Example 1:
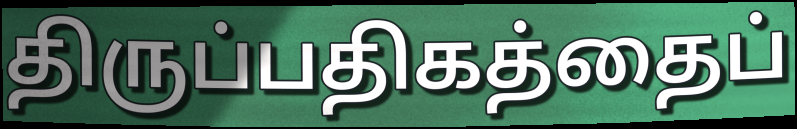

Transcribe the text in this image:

திருப்பதிகத்தைப்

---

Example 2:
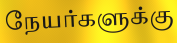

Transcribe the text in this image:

நேயர்களுக்கு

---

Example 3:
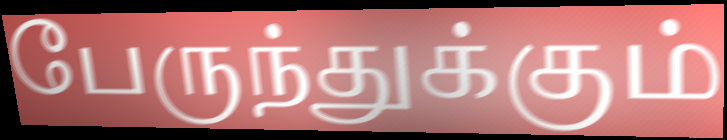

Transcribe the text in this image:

பேருந்துக்கும்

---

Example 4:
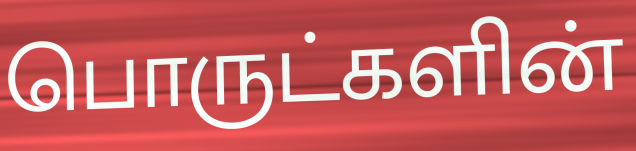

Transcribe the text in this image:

பொருட்களின்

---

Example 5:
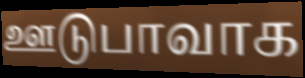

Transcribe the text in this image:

ஊடுபாவாக